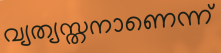
വ്യത്യസ്തനാണെന്ന്